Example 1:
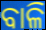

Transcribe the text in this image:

ବାଳି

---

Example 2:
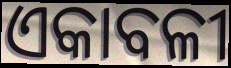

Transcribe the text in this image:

ଏକାବଳୀ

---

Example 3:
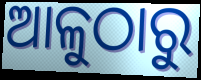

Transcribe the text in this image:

ଆଳୁଠାରୁ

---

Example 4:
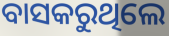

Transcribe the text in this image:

ବାସକରୁଥିଲେ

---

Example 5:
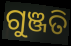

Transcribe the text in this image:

ଗୁଞ୍ଜତି